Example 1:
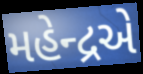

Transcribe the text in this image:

મહેન્દ્રએ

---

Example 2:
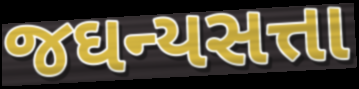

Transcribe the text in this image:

જઘન્યસત્તા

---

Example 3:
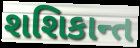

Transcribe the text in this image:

શશિકાન્ત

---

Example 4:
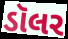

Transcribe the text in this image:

ડૉલર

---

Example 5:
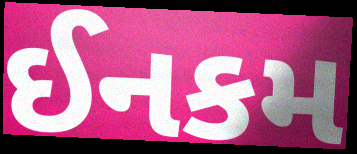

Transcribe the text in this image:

ઈનકમ